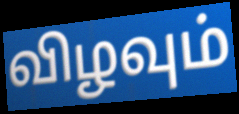
விழவும்